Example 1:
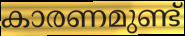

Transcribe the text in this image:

കാരണമുണ്ട്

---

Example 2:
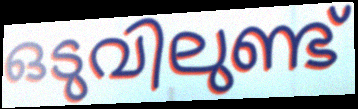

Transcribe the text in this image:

ഒടുവിലുണ്ട്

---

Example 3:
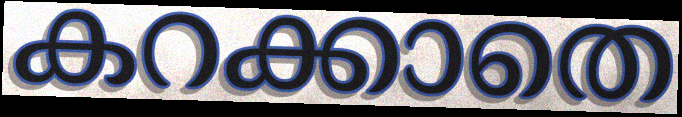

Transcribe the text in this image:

കറക്കാതെ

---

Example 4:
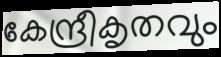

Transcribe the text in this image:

കേന്ദ്രീകൃതവും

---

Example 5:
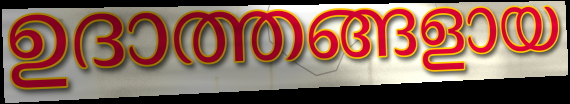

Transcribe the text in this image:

ഉദാത്തങ്ങളായ